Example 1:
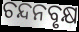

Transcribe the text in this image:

ଚନ୍ଦନବୃକ୍ଷ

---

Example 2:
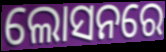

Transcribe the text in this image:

ଲୋସନରେ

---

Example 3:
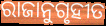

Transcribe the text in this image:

ରାଜାନୁଗୃହୀତ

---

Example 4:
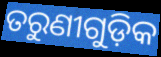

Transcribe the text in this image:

ତରୁଣୀଗୁଡ଼ିକ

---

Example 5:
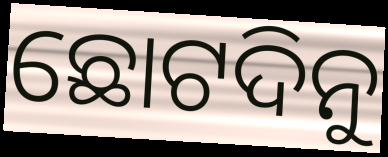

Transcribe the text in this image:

ଛୋଟଦିନୁ